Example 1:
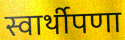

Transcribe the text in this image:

स्वार्थीपणा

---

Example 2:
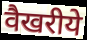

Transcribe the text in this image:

वैखरीये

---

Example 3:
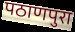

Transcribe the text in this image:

पठाणपुरा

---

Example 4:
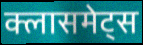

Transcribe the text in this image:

क्लासमेट्स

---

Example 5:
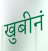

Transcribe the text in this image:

खुबीनं